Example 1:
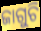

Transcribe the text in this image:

ଜାଗୁଚି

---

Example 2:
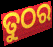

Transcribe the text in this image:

ତୁଠର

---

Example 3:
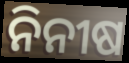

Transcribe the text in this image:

ନିନୀଷ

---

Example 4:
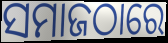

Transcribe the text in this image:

ସମାଜଠାରେ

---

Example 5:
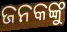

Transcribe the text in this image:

ଜନକଙ୍କୁ